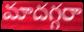
మాదగ్గరా